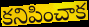
కనిపించాక